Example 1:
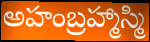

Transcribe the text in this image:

అహంబ్రహ్మాస్మి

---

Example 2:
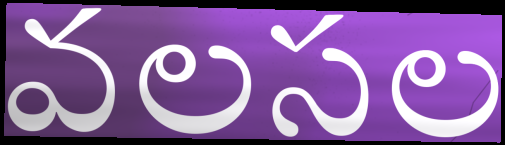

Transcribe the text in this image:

వలసల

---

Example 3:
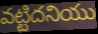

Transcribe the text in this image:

వట్టిదనియు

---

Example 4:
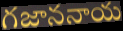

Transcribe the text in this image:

గజాననాయ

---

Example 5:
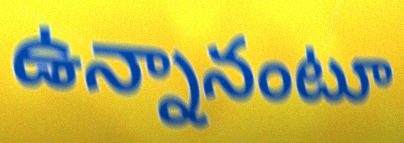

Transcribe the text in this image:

ఉన్నానంటూ